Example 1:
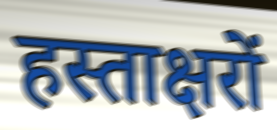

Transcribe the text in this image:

हस्ताक्षरों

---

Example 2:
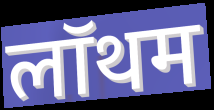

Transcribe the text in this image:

लॉथम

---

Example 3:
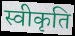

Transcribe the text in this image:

स्वीकृति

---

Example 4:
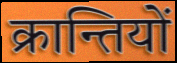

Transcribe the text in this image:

क्रान्तियों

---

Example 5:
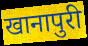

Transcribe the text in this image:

खानापुरी